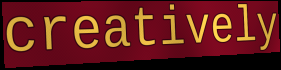
creatively